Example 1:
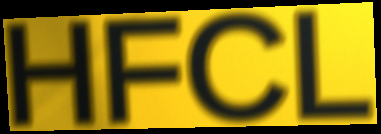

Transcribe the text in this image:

HFCL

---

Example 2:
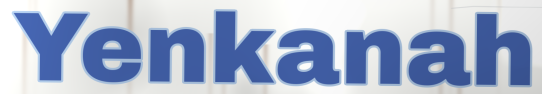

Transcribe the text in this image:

Yenkanah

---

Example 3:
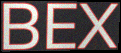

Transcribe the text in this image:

BEX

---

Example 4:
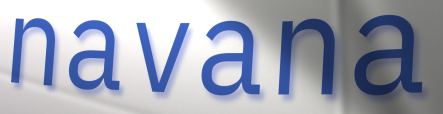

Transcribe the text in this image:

navana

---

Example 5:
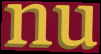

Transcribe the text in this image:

nu